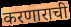
करणाराची